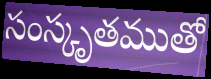
సంస్కృతముతో